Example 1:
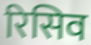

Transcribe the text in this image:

रिसिव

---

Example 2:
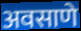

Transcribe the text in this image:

अवसाणे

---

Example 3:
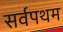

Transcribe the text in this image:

सर्वपथम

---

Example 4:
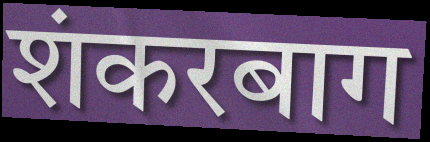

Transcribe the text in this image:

शंकरबाग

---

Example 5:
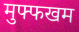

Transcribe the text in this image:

मुफ्फखम